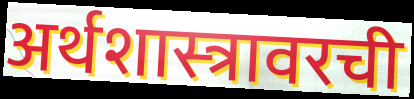
अर्थशास्त्रावरची